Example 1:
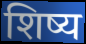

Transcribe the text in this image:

शिष्य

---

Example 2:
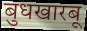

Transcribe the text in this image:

बुधखारबू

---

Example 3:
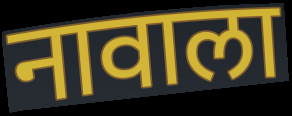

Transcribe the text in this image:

नावाला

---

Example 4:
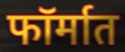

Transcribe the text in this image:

फॉर्मात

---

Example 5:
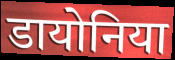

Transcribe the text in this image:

डायोनिया